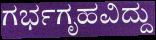
ಗರ್ಭಗೃಹವಿದ್ದು